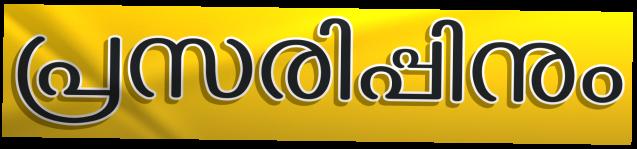
പ്രസരിപ്പിനും